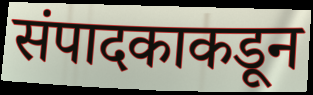
संपादकाकडून